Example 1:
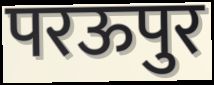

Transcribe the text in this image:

परऊपुर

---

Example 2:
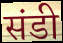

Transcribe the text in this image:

संडी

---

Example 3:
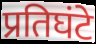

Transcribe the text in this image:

प्रतिघंटे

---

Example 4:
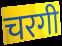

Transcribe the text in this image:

चरगी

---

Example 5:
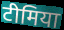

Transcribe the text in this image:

टीमिया